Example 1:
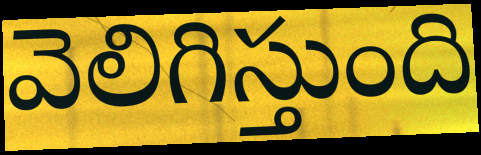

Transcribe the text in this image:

వెలిగిస్తుంది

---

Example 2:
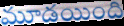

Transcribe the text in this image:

మూడయింది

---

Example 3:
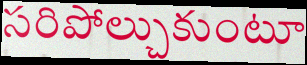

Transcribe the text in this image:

సరిపోల్చుకుంటూ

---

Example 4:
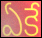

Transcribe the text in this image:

ఏకే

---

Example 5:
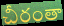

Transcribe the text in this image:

చీరంతా